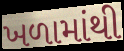
ખળામાંથી